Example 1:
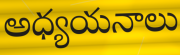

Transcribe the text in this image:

అధ్యయనాలు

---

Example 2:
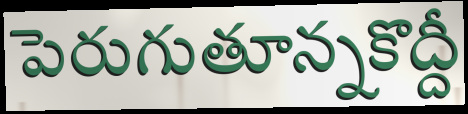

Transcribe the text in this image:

పెరుగుతూన్నకొద్దీ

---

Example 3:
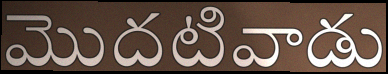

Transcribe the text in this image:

మొదటివాడు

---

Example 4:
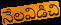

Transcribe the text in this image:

నేలవిడిచి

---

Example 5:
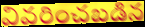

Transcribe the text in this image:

వివరించబడిన